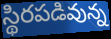
స్థిరపడివున్న